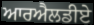
ਆਰਐਲਡੀਏ